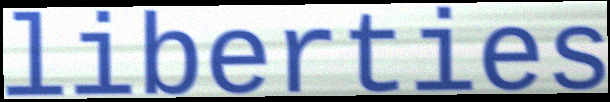
liberties